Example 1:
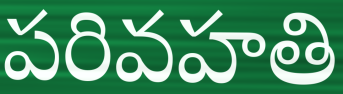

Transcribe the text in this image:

పరివహతి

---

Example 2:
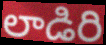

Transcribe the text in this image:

లాడిరి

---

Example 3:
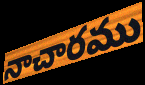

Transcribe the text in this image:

నాచారము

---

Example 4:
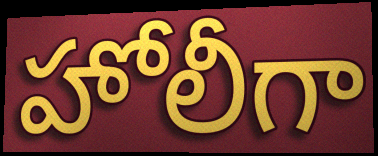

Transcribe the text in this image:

హోలీగా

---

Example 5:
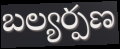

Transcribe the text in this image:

బల్యర్పణ